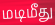
மடிமீது